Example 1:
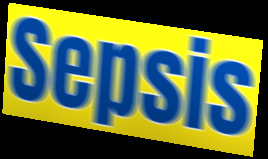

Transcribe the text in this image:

Sepsis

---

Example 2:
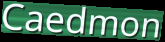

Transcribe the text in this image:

Caedmon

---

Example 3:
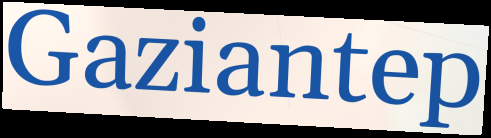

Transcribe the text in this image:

Gaziantep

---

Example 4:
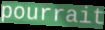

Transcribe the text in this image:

pourrait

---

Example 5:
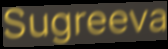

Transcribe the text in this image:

Sugreeva